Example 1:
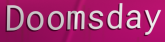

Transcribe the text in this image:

Doomsday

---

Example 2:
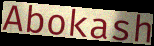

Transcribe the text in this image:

Abokash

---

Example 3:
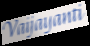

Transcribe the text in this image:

Vaijayanti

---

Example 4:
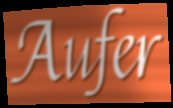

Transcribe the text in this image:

Aufer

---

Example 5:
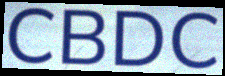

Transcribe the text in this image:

CBDC